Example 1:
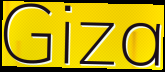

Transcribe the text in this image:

Giza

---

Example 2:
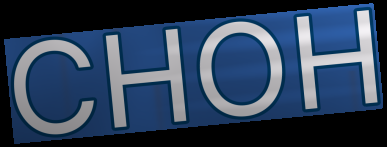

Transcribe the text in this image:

CHOH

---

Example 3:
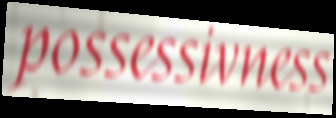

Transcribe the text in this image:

possessivness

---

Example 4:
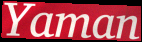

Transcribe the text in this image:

Yaman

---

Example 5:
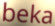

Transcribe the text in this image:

beka